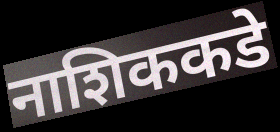
नाशिककडे